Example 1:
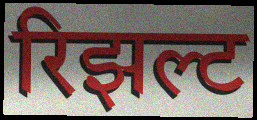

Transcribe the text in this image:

रिझल्ट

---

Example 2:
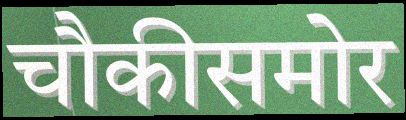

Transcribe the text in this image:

चौकीसमोर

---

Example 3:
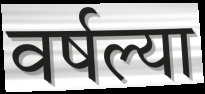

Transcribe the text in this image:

वर्षल्या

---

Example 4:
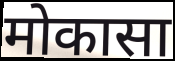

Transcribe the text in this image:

मोकासा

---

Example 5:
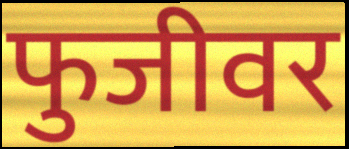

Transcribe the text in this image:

फुजीवर